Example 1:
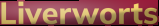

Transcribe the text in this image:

Liverworts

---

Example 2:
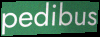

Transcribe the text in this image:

pedibus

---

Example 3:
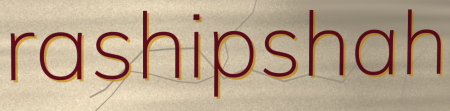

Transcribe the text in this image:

rashipshah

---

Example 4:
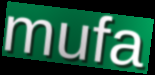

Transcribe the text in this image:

mufa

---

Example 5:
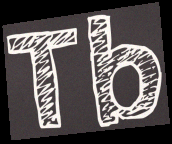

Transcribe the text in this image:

Tb